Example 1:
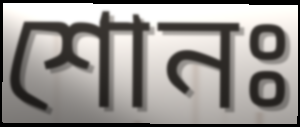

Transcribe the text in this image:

শোনঃ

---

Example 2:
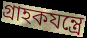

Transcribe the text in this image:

গ্রাহকযন্ত্রে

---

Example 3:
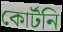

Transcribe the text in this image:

কোর্টনি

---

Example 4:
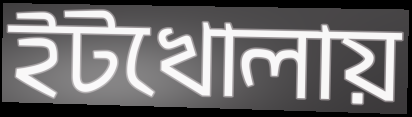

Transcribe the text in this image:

ইটখোলায়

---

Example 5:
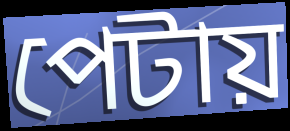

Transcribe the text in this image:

পেটায়